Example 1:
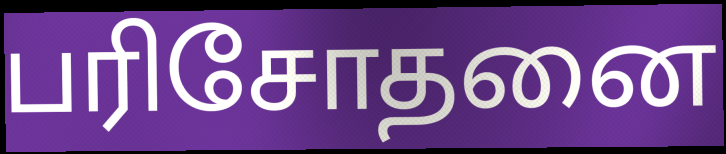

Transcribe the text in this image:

பரிசோதனை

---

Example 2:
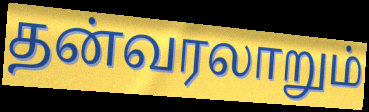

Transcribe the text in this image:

தன்வரலாறும்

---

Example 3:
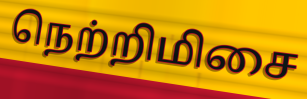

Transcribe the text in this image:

நெற்றிமிசை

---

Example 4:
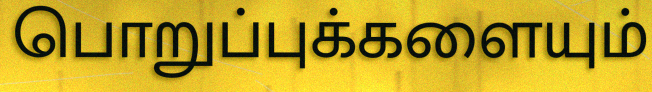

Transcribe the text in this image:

பொறுப்புக்களையும்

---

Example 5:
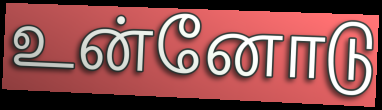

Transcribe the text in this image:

உன்னோடு